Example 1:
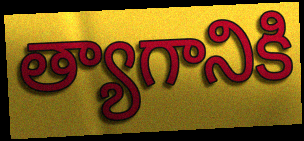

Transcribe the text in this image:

త్యాగానికి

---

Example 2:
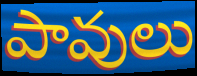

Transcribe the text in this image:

పావులు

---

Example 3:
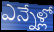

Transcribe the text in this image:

ఎన్నేళ్లో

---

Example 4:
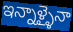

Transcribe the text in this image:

ఇన్నాళ్ళైనా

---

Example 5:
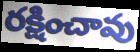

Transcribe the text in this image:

రక్షించావు